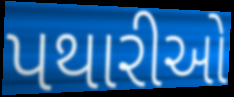
પથારીઓ